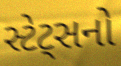
સ્ટેટ્સનો